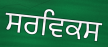
ਸਰਵਿਕਸ